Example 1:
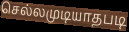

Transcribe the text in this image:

செல்லமுடியாதபடி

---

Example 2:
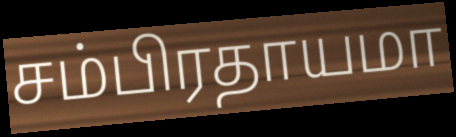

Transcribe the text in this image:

சம்பிரதாயமா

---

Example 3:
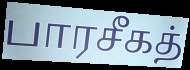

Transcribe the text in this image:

பாரசீகத்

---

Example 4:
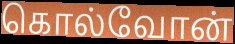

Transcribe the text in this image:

கொல்வோன்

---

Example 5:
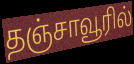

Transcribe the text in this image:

தஞ்சாவூரில்